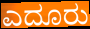
ಎದೂರು